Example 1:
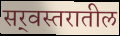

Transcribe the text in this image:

सर्वस्तरातील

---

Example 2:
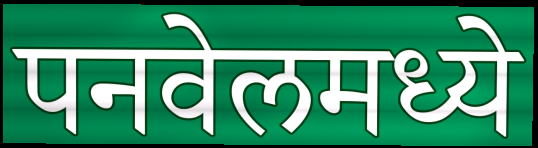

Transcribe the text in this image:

पनवेलमध्ये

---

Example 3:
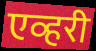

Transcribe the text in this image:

एव्हरी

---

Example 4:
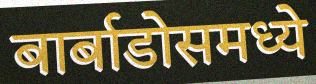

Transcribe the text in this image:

बार्बाडोसमध्ये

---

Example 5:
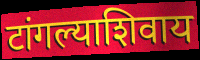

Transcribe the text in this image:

टांगल्याशिवाय